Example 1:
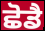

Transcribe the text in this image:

ਛੋਡੈ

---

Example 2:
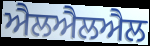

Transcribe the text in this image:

ਐਲਐਲਐਲ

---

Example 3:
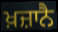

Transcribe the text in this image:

ਖ਼ਜ਼ਾਨੈ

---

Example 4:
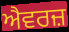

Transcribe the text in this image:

ਐਵਰਜ਼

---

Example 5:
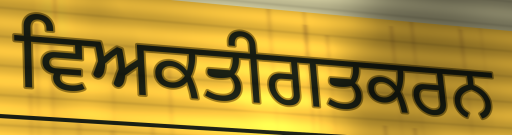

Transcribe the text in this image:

ਵਿਅਕਤੀਗਤਕਰਨ